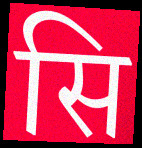
सि